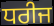
ਧਰੀਜ